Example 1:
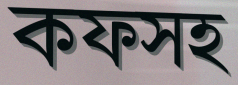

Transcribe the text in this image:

কফসহ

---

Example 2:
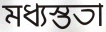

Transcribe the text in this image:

মধ্যস্ততা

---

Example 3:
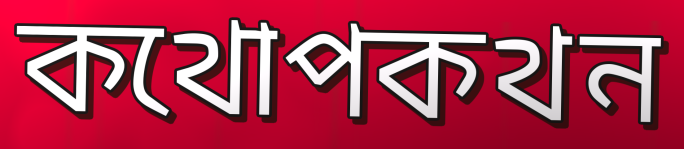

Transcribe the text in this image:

কথোপকথন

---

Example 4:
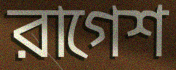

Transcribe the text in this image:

রাগেশ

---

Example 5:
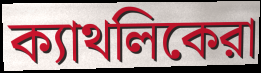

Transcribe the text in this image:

ক্যাথলিকেরা